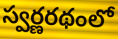
స్వర్ణరథంలో